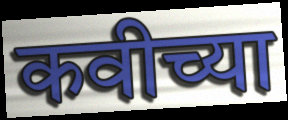
कवीच्या